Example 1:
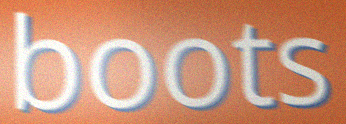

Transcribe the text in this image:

boots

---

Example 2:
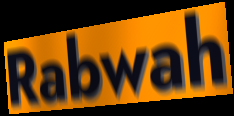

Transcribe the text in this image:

Rabwah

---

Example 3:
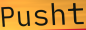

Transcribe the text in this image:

Pusht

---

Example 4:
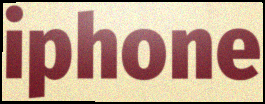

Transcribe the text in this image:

iphone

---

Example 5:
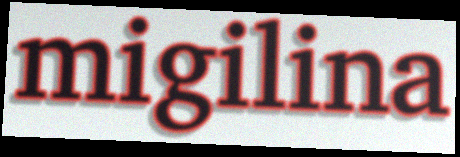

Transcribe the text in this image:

migilina